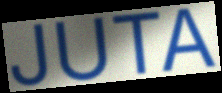
JUTA